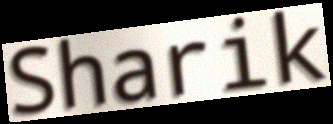
Sharik